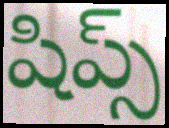
షిప్స్